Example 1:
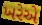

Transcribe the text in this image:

ખરેએ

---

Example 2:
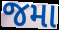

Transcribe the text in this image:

જમા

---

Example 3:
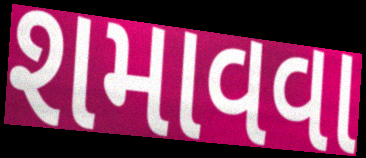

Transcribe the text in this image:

શમાવવા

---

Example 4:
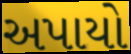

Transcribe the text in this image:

અપાયો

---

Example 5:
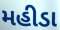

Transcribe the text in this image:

મહીડા